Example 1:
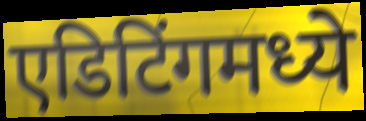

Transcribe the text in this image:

एडिटिंगमध्ये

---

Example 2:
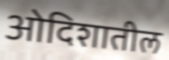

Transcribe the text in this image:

ओदिशातील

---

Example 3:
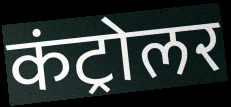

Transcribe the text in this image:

कंट्रोलर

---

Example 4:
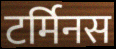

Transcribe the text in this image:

टर्मिनस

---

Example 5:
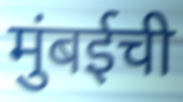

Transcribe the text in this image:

मुंबईची